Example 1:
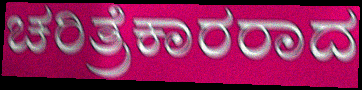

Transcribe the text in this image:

ಚರಿತ್ರೆಕಾರರಾದ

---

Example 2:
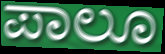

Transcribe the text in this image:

ಪಾಲೂ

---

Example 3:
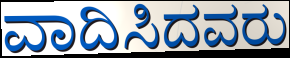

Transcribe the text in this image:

ವಾದಿಸಿದವರು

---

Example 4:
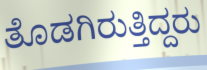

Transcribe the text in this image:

ತೊಡಗಿರುತ್ತಿದ್ದರು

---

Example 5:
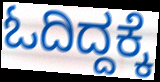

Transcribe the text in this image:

ಓದಿದ್ದಕ್ಕೆ